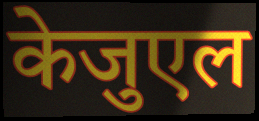
केजुएल